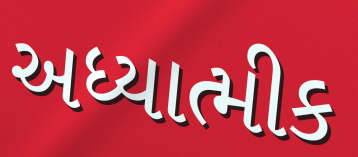
અધ્યાત્મીક